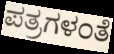
ಪತ್ರಗಳಂತೆ